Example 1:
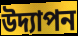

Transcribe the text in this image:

উদ্যাপন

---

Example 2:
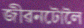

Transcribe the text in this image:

জীৱনটোলৈ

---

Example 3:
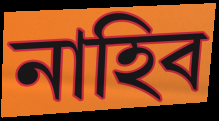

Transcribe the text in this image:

নাহিব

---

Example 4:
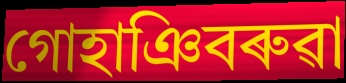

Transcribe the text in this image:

গোহাঞিবৰুৱা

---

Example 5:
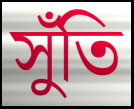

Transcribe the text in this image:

সুঁতি